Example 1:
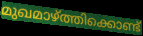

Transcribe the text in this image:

മുഖമാഴ്ത്തിക്കൊണ്ട്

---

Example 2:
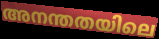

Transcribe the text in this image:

അനന്തതയിലെ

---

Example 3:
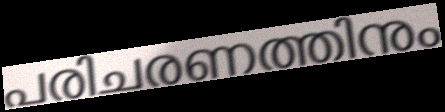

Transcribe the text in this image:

പരിചരണത്തിനും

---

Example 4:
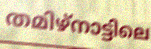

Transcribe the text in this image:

തമിഴ്നാട്ടിലെ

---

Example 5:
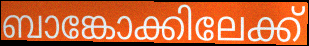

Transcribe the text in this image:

ബാങ്കോക്കിലേക്ക്